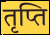
तृप्ति